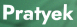
Pratyek